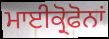
ਮਾਈਕ੍ਰੋਫੋਨਾਂ